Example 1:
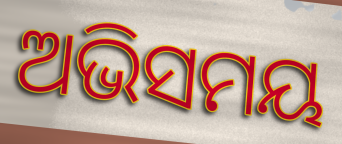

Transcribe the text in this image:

ଅଭିସମୟ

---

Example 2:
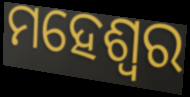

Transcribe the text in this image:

ମହେଶ୍ଵର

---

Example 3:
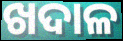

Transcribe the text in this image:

ଖଦାଳ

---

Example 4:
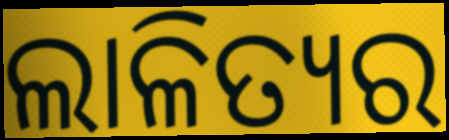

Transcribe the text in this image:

ଲାଳିତ୍ୟର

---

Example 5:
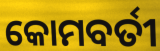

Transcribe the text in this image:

କୋମବର୍ତୀ